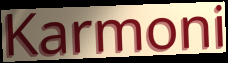
Karmoni